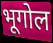
भूगोल